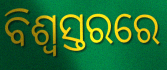
ବିଶ୍ୱସ୍ତରରେ